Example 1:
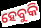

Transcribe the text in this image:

ହେବୁକି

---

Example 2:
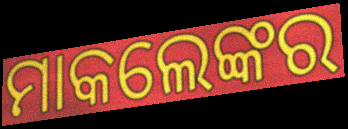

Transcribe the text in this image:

ମାକଲେଙ୍କର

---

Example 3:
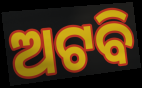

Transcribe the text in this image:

ଅଟବି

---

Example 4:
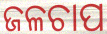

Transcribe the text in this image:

ଜଳଚାପ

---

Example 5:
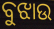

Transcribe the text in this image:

ବୁଝାଉ